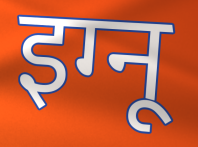
इग्‍नू